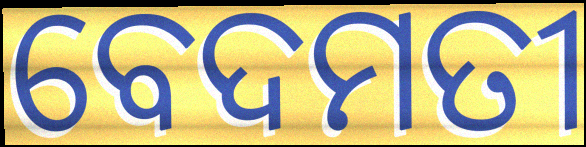
ବେଦମତୀ